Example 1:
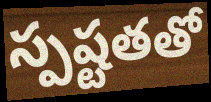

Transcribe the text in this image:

స్పష్టతతో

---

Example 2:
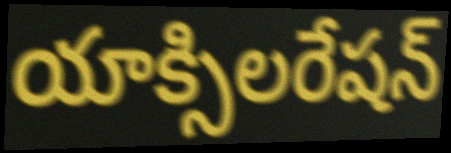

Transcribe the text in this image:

యాక్సిలరేషన్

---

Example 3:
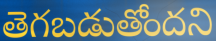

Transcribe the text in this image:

తెగబడుతోందని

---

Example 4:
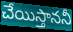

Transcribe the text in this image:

చేయిస్తాననీ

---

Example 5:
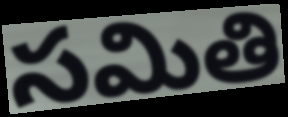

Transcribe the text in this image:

సమితి